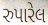
રુપારેલ